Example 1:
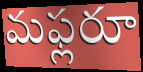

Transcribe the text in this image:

మఫ్లరూ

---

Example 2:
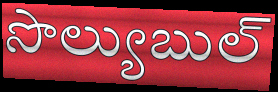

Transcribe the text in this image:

సొల్యుబుల్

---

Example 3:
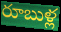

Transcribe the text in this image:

రూబుళ్ల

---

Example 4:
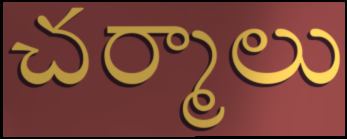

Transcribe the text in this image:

చర్మాలు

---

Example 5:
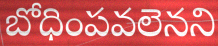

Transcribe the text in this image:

బోధింపవలెనని